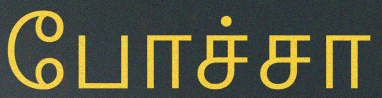
போச்சா